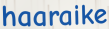
haaraike